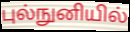
புல்நுனியில்